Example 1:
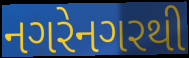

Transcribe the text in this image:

નગરેનગરથી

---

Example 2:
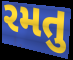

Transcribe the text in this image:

રમતુ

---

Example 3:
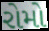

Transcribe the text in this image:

રોમો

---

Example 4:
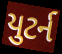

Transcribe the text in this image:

યુટર્ન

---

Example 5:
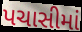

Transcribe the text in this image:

પચાસીમાં